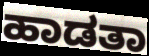
ಹಾಡತಾ